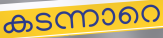
കടന്നാറെ